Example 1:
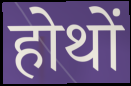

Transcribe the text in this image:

होथों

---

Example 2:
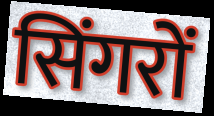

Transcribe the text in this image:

सिंगरों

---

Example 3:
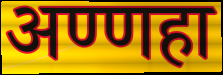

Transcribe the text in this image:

अण्णहा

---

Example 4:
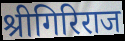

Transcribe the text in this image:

श्रीगिरिराज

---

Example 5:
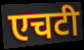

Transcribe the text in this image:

एचटी